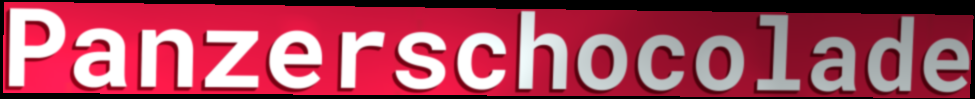
Panzerschocolade